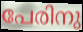
പേരിനു